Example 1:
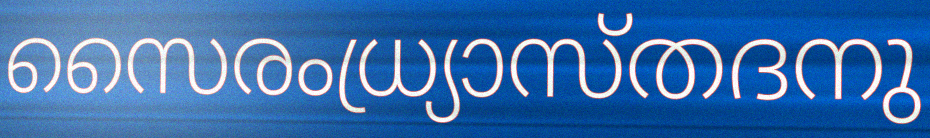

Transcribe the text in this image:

സൈരംധ്ര്യാസ്തദനു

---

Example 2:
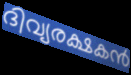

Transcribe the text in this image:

ദിവ്യരക്ഷകൻ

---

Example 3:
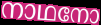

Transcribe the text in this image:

നാഥനോ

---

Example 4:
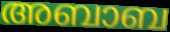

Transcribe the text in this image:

അബാബ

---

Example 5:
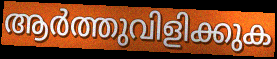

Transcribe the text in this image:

ആർത്തുവിളിക്കുക